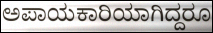
ಅಪಾಯಕಾರಿಯಾಗಿದ್ದರೂ